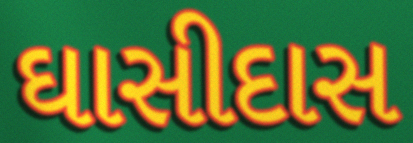
ઘાસીદાસ